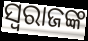
ସ୍ୱରାଜଙ୍କ